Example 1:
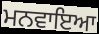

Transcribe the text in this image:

ਮਨਵਾਇਆ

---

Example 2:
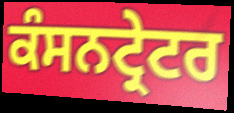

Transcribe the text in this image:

ਕੰਸਨਟ੍ਰੇਟਰ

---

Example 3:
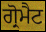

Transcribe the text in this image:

ਗ੍ਰੋਮੈਟ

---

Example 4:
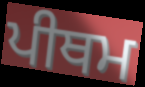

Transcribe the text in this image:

ਪੀਥਮ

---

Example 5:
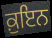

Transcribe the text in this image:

ਕ਼ੁਇਨ